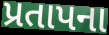
પ્રતાપના